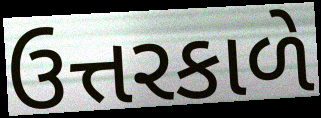
ઉત્તરકાળે